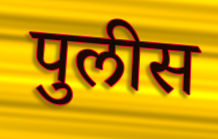
पुलीस